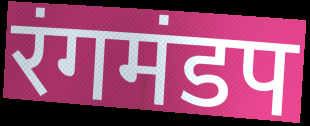
रंगमंडप